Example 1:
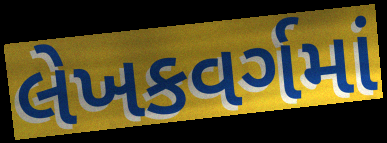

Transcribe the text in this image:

લેખકવર્ગમાં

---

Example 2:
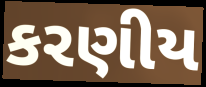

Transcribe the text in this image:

કરણીય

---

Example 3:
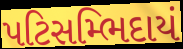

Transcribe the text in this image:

પટિસમ્ભિદાયં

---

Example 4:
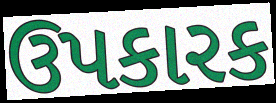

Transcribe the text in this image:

ઉપકારક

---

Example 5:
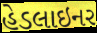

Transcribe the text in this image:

હેડલાઇનર